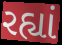
રહ્યાં